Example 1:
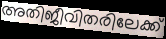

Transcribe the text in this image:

അതിജീവിതരിലേക്ക്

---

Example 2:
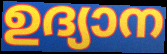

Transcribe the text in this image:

ഉദ്യാന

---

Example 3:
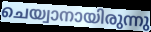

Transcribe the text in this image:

ചെയ്വാനായിരുന്നു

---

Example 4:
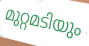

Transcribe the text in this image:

മുറ്റമടിയും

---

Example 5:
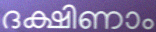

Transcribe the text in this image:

ദക്ഷിണാം